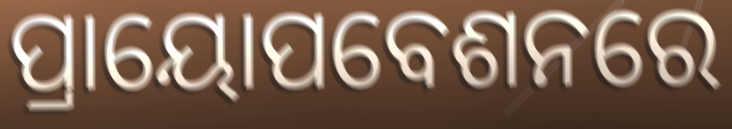
ପ୍ରାୟୋପବେଶନରେ